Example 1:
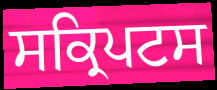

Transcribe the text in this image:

ਸਕ੍ਰਿਪਟਸ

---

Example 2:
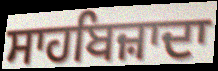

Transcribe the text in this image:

ਸਾਹਬਿਜ਼ਾਦਾ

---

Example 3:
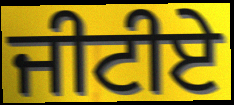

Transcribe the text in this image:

ਜੀਟੀਏ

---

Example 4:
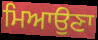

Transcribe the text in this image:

ਮਿਆਉਣਾ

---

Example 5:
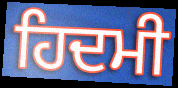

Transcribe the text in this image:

ਹਿਦਮੀ